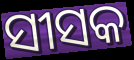
ସୀସକ